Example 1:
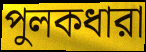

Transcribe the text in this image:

পুলকধারা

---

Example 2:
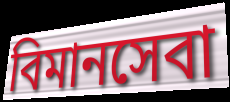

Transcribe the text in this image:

বিমানসেবা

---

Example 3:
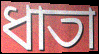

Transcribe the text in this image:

ধাতা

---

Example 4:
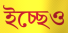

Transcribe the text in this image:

ইচ্ছেও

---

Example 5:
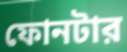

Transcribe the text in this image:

ফোনটার